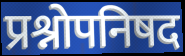
प्रश्नोपनिषद